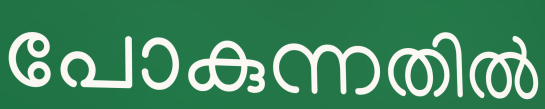
പോകുന്നതിൽ